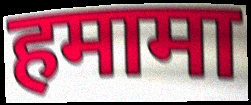
हमामा